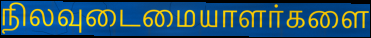
நிலவுடைமையாளர்களை